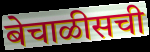
बेचाळीसची